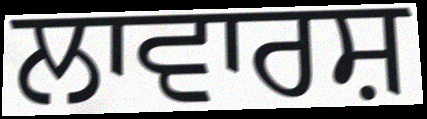
ਲਾਵਾਰਸ਼